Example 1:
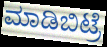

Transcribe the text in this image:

ಮಾಡಿಬಿಟ್ರೆ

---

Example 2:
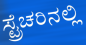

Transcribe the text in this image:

ಸ್ಟ್ರೆಚರಿನಲ್ಲಿ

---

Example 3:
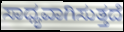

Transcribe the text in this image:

ಸಾಧ್ಯವಾಗಿಸುತ್ತದೆ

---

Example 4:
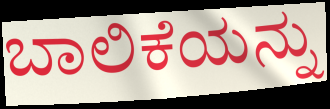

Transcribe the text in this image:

ಬಾಲಿಕೆಯನ್ನು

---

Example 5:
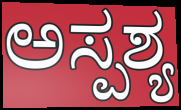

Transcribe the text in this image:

ಅಸ್ಪಶ್ಯ